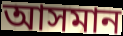
আসমান